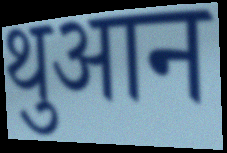
थुआन